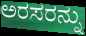
ಅರಸರನ್ನು